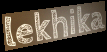
lekhika